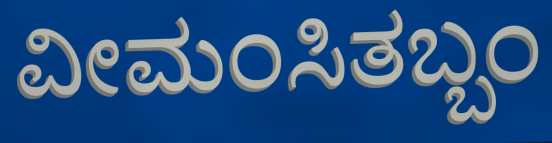
ವೀಮಂಸಿತಬ್ಬಂ